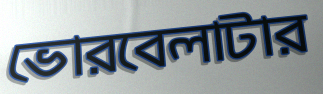
ভোরবেলাটার